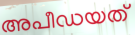
അപീഡയത്